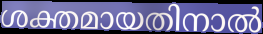
ശക്തമായതിനാൽ